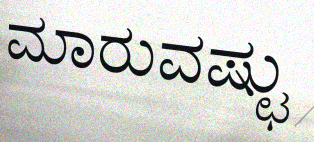
ಮಾರುವಷ್ಟು